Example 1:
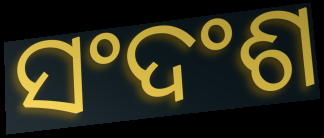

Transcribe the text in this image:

ସଂଦଂଶ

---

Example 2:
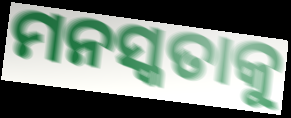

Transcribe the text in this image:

ମନସ୍କତାକୁ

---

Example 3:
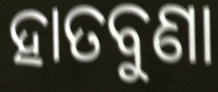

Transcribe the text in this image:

ହାତବୁଣା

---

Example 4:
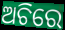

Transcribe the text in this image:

ଅଚିରେ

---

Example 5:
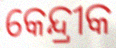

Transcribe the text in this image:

କେନ୍ଦ୍ରୀକ